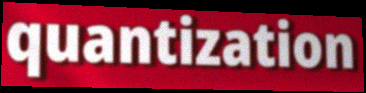
quantization